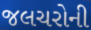
જલચરોની